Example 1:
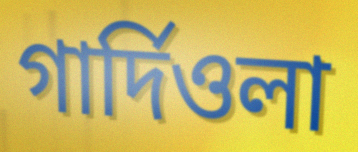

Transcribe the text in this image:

গার্দিওলা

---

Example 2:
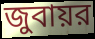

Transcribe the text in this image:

জুবায়র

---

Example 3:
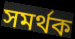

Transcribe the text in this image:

সমর্থক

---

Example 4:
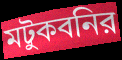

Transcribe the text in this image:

মটুকবনির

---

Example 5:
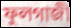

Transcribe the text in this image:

ফুলগাজী